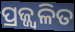
ପ୍ରଜ୍ଜ୍ବଳିତ